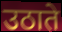
उठाते